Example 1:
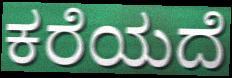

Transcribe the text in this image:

ಕರೆಯದೆ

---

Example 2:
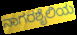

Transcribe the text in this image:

ನಾಗರಶೈಲಿಯ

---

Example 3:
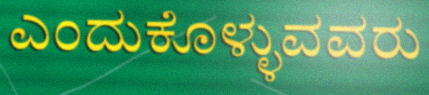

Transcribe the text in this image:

ಎಂದುಕೊಳ್ಳುವವರು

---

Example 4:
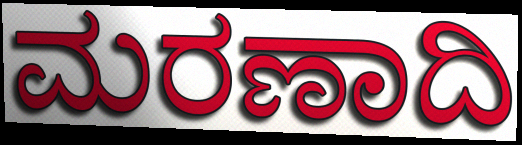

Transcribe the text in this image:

ಮರಣಾದಿ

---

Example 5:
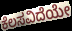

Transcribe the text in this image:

ಕೆಲಸವಿದೆಯೇ